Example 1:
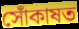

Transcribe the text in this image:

সোঁকাষত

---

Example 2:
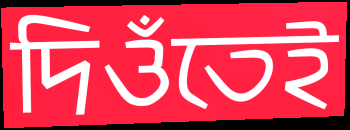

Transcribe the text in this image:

দিওঁতেই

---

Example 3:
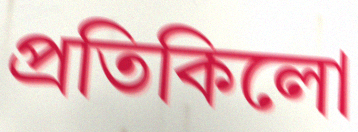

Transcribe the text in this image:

প্ৰতিকিলো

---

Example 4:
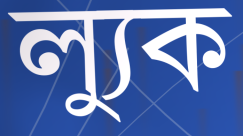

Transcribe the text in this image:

ল্যুক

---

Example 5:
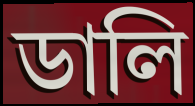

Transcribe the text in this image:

ডালি